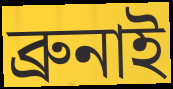
ব্ৰুনাই